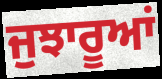
ਜੁਝਾਰੂਆਂ